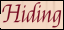
Hiding